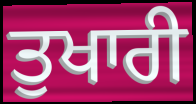
ਤੁਖਾਰੀ